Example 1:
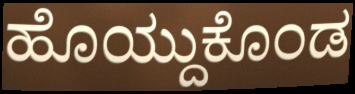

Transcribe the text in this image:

ಹೊಯ್ದುಕೊಂಡ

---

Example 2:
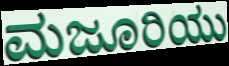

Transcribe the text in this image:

ಮಜೂರಿಯು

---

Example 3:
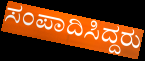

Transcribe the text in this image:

ಸಂಪಾದಿಸಿದ್ದರು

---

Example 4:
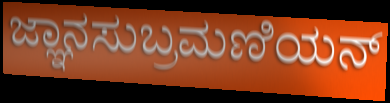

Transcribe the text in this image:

ಜ್ಞಾನಸುಬ್ರಮಣಿಯನ್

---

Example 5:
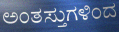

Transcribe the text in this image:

ಅಂತಸ್ತುಗಳಿಂದ